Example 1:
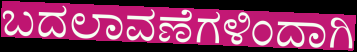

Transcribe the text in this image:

ಬದಲಾವಣೆಗಳಿಂದಾಗಿ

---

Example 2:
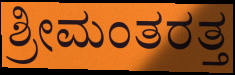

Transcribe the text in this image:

ಶ್ರೀಮಂತರತ್ತ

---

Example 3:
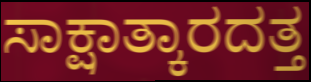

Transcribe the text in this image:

ಸಾಕ್ಷಾತ್ಕಾರದತ್ತ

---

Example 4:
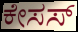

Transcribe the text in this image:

ಕೇಸಸ್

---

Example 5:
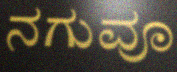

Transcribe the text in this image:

ನಗುವೂ